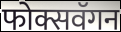
फोक्सवॅगन